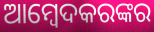
ଆମ୍ବେଦକରଙ୍କର